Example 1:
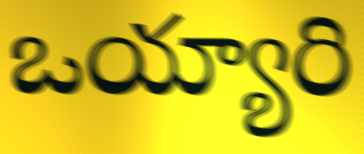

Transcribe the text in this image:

ఒయ్యారి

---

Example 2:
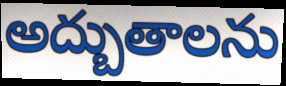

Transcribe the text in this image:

అద్బుతాలను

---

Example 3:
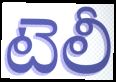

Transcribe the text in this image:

టెలీ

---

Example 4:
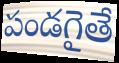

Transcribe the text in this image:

పండగైతే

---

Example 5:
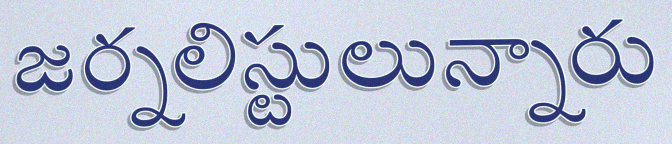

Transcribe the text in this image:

జర్నలిస్టులున్నారు